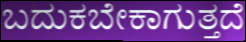
ಬದುಕಬೇಕಾಗುತ್ತದೆ